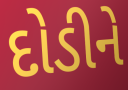
દોડીને